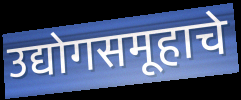
उद्योगसमूहाचे